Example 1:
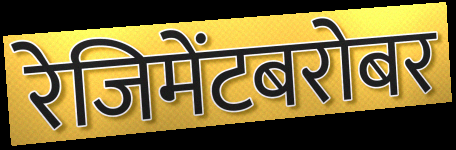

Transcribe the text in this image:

रेजिमेंटबरोबर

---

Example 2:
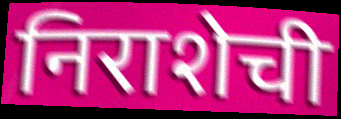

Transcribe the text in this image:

निराशेची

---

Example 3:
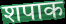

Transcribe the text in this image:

शपाक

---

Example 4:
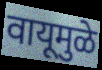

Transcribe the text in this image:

वायूमुळे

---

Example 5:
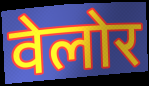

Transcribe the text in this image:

वेलोर